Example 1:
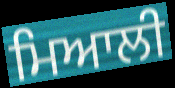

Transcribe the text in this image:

ਮਿਆਲੀ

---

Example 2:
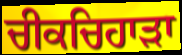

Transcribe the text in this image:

ਚੀਕਚਿਹਾੜਾ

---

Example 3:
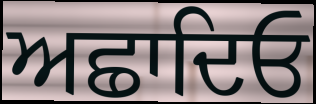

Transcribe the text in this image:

ਅਛਾਦਿਓ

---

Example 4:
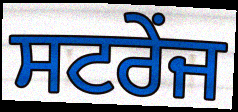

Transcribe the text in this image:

ਸਟਰੇਂਜ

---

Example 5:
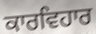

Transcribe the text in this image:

ਕਾਰਵਿਹਾਰ